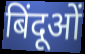
बिंदूओं